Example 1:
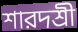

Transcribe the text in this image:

শারদশ্রী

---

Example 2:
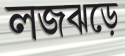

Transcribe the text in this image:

লজঝড়ে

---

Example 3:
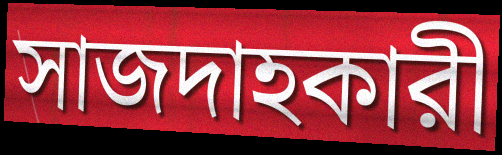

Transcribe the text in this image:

সাজদাহকারী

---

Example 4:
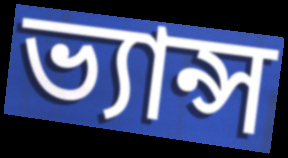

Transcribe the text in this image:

ভ্যান্স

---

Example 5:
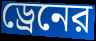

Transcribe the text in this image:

ড্রেনের